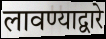
लावण्याद्वारे